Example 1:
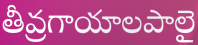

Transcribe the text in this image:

తీవ్రగాయాలపాలై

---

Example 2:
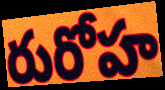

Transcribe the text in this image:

రురోహ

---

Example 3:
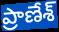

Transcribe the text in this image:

ప్రాణేశ్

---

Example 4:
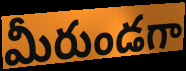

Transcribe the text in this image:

మీరుండగా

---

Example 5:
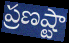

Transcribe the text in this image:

ప్రణష్టా